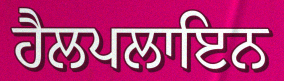
ਹੈਲਪਲਾਇਨ